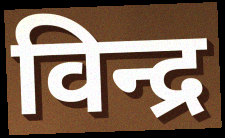
विन्द्र